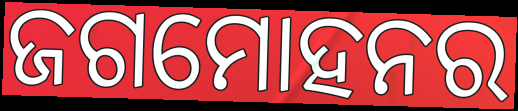
ଜଗମୋହନର